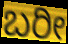
ಬರೀ